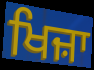
ਖਿਜ਼ਾ